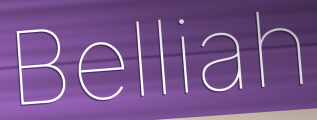
Belliah